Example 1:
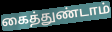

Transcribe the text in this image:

கைத்துண்டாம்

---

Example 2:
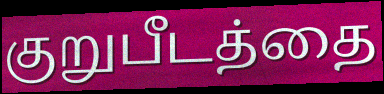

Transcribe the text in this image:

குறுபீடத்தை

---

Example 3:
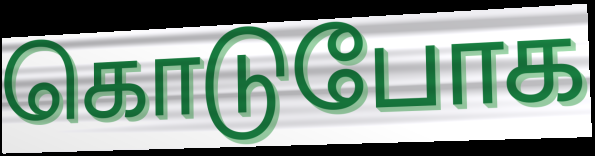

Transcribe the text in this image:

கொடுபோக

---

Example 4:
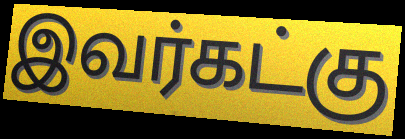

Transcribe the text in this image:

இவர்கட்கு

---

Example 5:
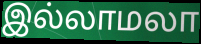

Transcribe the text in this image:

இல்லாமலா